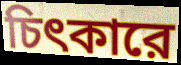
চিৎকারে